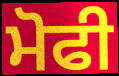
ਮੋਫੀ